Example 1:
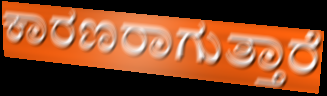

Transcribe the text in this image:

ಕಾರಣರಾಗುತ್ತಾರೆ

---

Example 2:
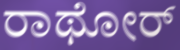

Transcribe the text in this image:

ರಾಥೋರ್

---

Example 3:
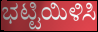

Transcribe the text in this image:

ಭಟ್ಟಿಯಿಳಿಸಿ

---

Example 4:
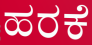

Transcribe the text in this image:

ಹರಕೆ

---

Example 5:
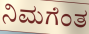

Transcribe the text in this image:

ನಿಮಗೆಂತ